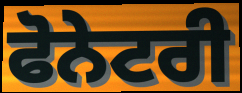
ਫੋਨੇਟਰੀ